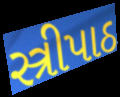
સ્ત્રીપાઠ